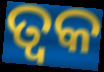
ତ୍ୱକ